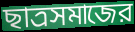
ছাত্রসমাজের